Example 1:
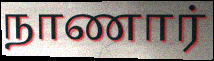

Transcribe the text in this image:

நாணார்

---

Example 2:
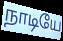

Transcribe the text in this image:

நாடியே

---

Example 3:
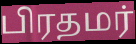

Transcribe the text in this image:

பிரதமர்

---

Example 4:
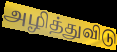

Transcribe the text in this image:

அழித்துவிடு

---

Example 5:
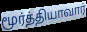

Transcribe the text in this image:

மூர்த்தியாவார்